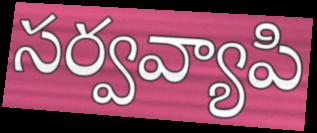
సర్వవ్యాపి